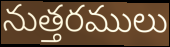
నుత్తరములు